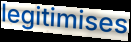
legitimises